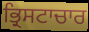
ਭ੍ਰਿਸਟਾਚਾਰ